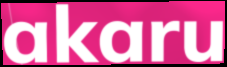
akaru